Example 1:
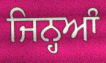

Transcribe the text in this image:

ਜਿਨ੍ਹਆੰ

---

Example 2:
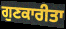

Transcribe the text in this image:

ਗੁਣਕਾਰੀਤਾ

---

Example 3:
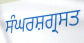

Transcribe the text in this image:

ਸੰਘਰਸ਼ਗ੍ਰਸਤ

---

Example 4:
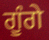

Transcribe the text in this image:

ਗੂੰਗੇ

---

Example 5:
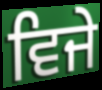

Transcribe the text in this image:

ਵਿਜੇ